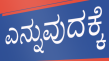
ಎನ್ನುವುದಕ್ಕೆ